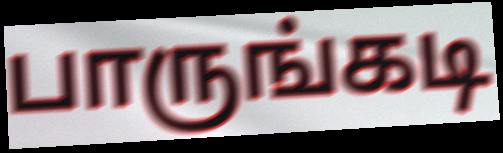
பாருங்கடி